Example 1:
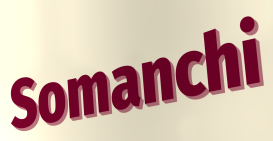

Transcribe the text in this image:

Somanchi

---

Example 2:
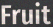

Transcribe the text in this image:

Fruit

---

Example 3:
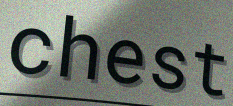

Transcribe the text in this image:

chest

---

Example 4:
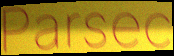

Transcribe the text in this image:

Parsec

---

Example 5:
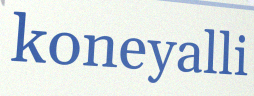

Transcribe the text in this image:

koneyalli